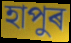
হাপুৰ